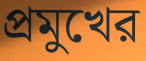
প্রমুখের